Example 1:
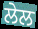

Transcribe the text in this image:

ਲੇਲ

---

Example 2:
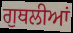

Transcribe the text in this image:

ਗੁਥਲੀਆਂ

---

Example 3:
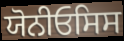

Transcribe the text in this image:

ਯੋਨੀਓਸਿਸ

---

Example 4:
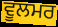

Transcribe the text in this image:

ਵੂਲਮਰ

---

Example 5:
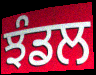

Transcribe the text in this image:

ਝੰਡਲ